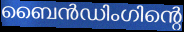
ബൈൻഡിംഗിന്റെ